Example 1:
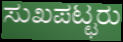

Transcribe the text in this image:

ಸುಖಪಟ್ಟರು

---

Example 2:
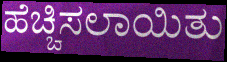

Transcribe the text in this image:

ಹೆಚ್ಚಿಸಲಾಯಿತು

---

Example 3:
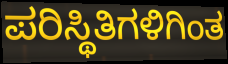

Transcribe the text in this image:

ಪರಿಸ್ಥಿತಿಗಳಿಗಿಂತ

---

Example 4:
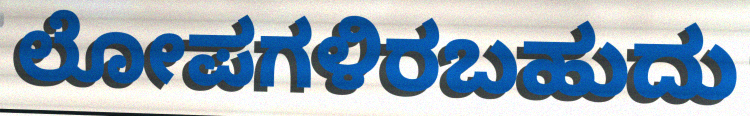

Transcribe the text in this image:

ಲೋಪಗಳಿರಬಹುದು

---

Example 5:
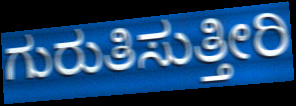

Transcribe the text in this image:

ಗುರುತಿಸುತ್ತೀರಿ